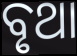
ବୃଥା